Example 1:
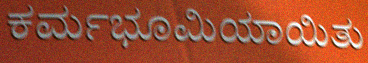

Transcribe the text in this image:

ಕರ್ಮಭೂಮಿಯಾಯಿತು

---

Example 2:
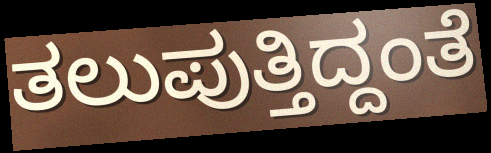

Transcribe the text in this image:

ತಲುಪುತ್ತಿದ್ದಂತೆ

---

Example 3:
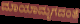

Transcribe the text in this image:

ಮಾಯಾಮೃಗದಂತೆ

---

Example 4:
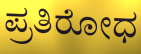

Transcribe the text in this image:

ಪ್ರತಿರೋಧ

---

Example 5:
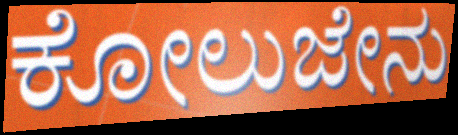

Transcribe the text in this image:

ಕೋಲುಜೇನು